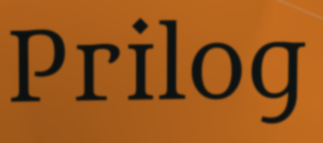
Prilog